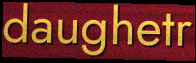
daughetr